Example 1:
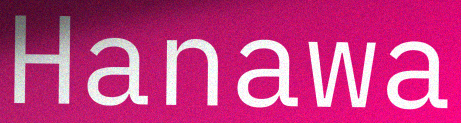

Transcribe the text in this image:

Hanawa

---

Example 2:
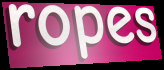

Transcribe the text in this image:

ropes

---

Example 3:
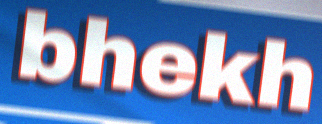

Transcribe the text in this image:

bhekh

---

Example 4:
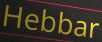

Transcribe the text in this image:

Hebbar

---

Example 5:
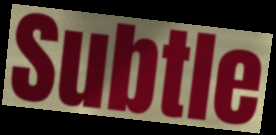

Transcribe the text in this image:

Subtle